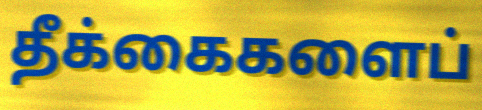
தீக்கைகளைப்